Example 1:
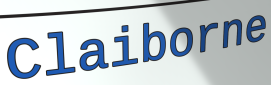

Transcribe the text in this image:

Claiborne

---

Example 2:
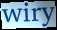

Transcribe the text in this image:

wiry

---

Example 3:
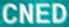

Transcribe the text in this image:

CNED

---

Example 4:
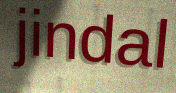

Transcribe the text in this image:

jindal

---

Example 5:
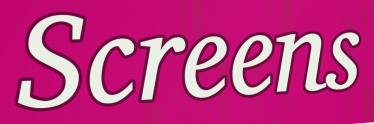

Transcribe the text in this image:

Screens